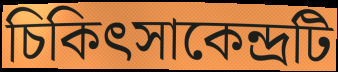
চিকিৎসাকেন্দ্রটি